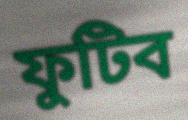
ফুটিব